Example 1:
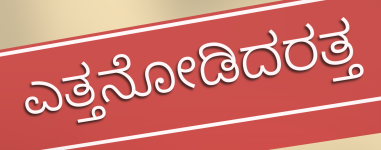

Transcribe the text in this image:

ಎತ್ತನೋಡಿದರತ್ತ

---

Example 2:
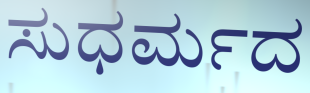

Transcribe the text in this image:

ಸುಧರ್ಮದ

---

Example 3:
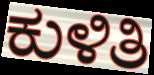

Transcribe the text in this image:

ಕುಳಿತಿ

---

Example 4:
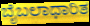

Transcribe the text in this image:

ಬೈಬಲಾಧಾರಿತ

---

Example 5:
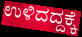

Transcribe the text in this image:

ಉಳಿದದ್ದಕ್ಕೆ